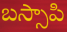
బస్సాపి